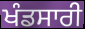
ਖੰਡਸਾਰੀ